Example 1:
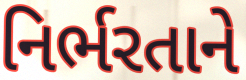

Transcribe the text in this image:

નિર્ભરતાને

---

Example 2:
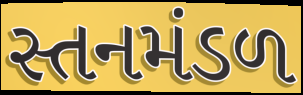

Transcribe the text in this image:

સ્તનમંડળ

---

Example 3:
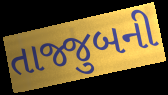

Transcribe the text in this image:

તાજ્જુબની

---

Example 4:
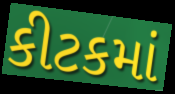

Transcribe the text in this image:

કીટકમાં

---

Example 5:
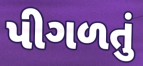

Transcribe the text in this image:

પીગળતું